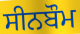
ਸੀਨਬੌਮ